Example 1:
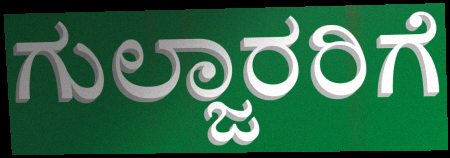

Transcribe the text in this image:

ಗುಲ್ಜಾರರಿಗೆ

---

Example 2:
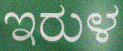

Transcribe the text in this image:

ಇರುಳ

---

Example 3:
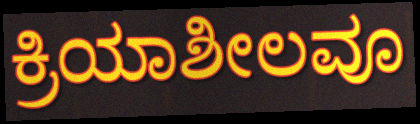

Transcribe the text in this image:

ಕ್ರಿಯಾಶೀಲವೂ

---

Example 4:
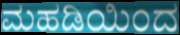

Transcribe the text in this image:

ಮಹಡಿಯಿಂದ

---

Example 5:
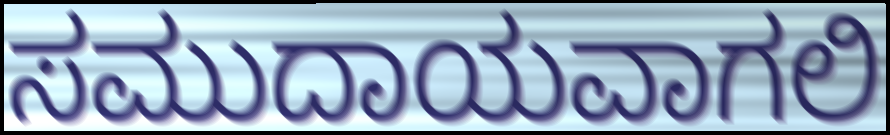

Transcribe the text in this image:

ಸಮುದಾಯವಾಗಲಿ